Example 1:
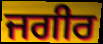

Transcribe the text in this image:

ਜਗੀਰ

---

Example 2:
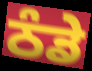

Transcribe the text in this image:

ਠੰਡੇ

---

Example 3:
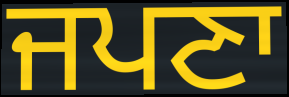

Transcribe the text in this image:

ਜਪਣਾ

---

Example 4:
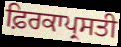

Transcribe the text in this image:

ਫ਼ਿਰਕਾਪ੍ਰਸਤੀ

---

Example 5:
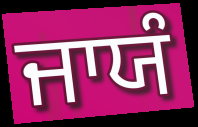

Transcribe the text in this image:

ਜਾਯੰ